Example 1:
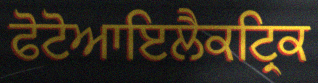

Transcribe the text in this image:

ਫੋਟੋਆਇਲੈਕਟ੍ਰਿਕ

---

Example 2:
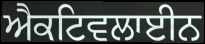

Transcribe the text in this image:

ਐਕਟਿਵਲਾਈਨ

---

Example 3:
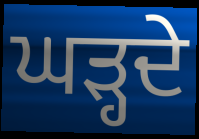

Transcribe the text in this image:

ਘੜ੍ਹਦੇ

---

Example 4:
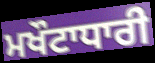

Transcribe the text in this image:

ਮਖੌਟਾਧਾਰੀ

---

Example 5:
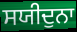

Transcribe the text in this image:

ਸਯੀਦੁਨਾ